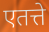
एतत्ते